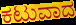
ಕಟುವಾದ